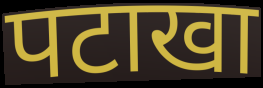
पटाखा